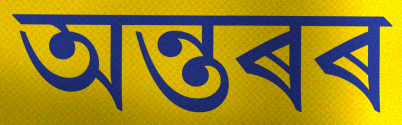
অন্তৰৰ